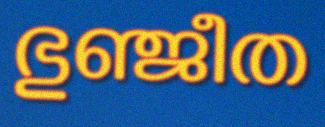
ഭുഞ്ജീത